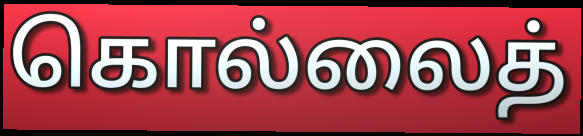
கொல்லைத்